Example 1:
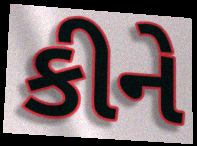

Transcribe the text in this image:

કીને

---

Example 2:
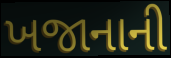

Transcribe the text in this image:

ખજાનાની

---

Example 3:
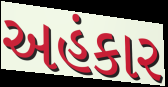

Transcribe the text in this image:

અહંકાર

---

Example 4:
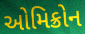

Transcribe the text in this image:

ઓમિક્રોન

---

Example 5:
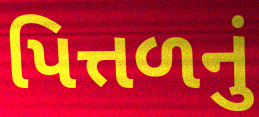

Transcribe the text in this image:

પિત્તળનું